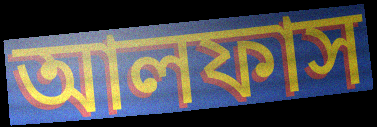
আলফাস